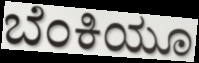
ಬೆಂಕಿಯೂ